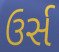
ઉર્સ